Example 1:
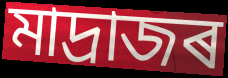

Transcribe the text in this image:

মাদ্ৰাজৰ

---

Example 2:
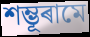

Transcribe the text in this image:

শম্ভূৰামে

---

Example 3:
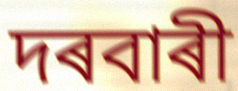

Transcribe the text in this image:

দৰবাৰী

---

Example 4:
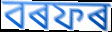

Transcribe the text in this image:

বৰফৰ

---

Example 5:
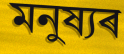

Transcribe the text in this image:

মনুষ্যৰ